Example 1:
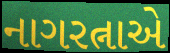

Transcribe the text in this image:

નાગરત્નાએ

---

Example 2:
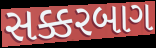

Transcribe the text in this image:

સક્કરબાગ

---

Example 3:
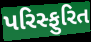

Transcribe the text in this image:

પરિસ્ફુરિત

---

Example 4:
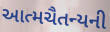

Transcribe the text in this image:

આત્મચૈતન્યની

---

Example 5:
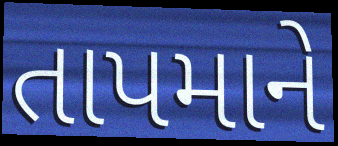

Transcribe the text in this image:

તાપમાને